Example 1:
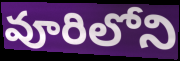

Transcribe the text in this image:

వూరిలోని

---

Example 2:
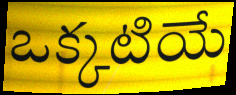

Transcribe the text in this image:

ఒక్కటియే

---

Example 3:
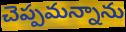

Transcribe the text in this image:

చెప్పమన్నాను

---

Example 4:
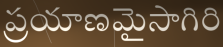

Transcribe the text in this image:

ప్రయాణమైసాగిరి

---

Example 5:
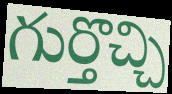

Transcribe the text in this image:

గుర్తొచ్చి